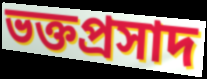
ভক্তপ্রসাদ